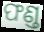
ଫଣ୍ଡ